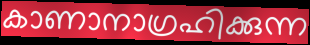
കാണാനാഗ്രഹിക്കുന്ന